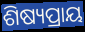
ଶିଷ୍ୟପ୍ରାୟ